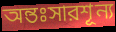
অন্তঃসারশূন্য